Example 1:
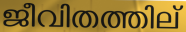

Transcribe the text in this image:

ജീവിതത്തില്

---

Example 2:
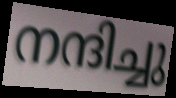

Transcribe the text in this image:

നന്ദിച്ചു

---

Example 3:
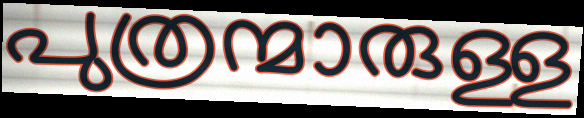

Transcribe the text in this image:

പുത്രന്മാരുള്ള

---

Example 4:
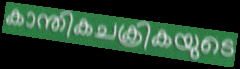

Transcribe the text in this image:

കാന്തികചക്രികയുടെ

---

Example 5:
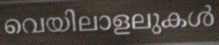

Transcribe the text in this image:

വെയിലാളലുകൾ